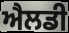
ਐਲਡੀ